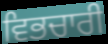
ਵਿਭਚਾਰੀ